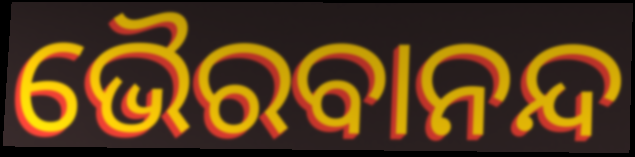
ଭୈରବାନନ୍ଦ